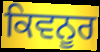
ਕਿਵਨੂਰ